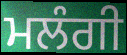
ਮਲੰਗੀ